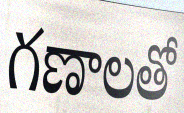
గణాలతో